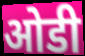
ओडी